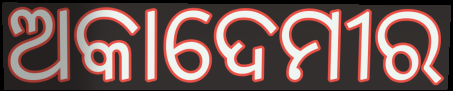
ଅକାଦେମୀର